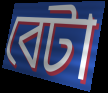
বেটা